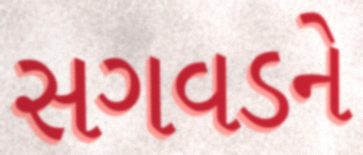
સગવડને